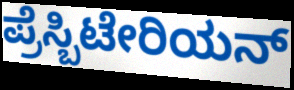
ಪ್ರೆಸ್ಬಿಟೇರಿಯನ್